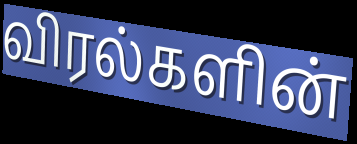
விரல்களின்